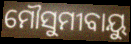
ମୌସୁମୀବାୟୁ